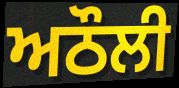
ਅਠੌਲੀ